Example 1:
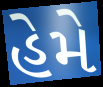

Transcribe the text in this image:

હેમે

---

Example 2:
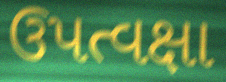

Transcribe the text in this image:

ઉપત્વક્ષા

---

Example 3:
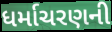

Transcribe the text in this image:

ધર્માચરણની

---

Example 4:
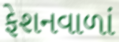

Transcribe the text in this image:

ફેશનવાળાં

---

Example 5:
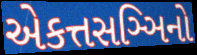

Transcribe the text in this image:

એકત્તસઞ્ઞિનો